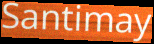
Santimay